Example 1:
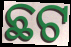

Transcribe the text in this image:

ଛଟ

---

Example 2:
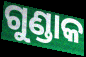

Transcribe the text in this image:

ଗୁଣ୍ଡାକ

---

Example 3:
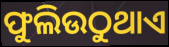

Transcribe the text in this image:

ଫୁଲିଉଠୁଥାଏ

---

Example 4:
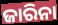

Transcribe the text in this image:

ଜାରିନା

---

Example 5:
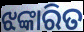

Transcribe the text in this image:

ଝଙ୍କାରିତ